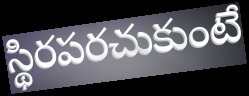
స్థిరపరచుకుంటే